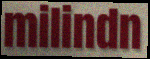
milindn